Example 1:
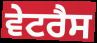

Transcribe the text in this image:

ਵੇਟਰੈਸ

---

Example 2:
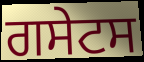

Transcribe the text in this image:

ਗਸੇਟਸ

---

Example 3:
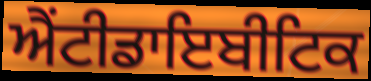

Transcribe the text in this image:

ਐਂਟੀਡਾਇਬੀਟਿਕ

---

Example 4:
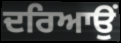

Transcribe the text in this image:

ਦਰਿਆਉਂ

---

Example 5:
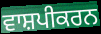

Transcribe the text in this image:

ਵਾਸ਼ਪੀਕਰਨ